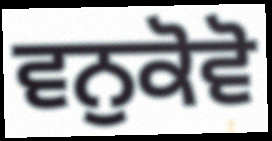
ਵਨੁਕੋਵੋ